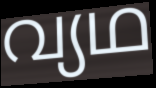
വ്യഥ